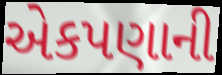
એકપણાની